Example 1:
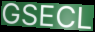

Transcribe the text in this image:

GSECL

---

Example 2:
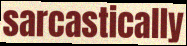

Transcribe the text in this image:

sarcastically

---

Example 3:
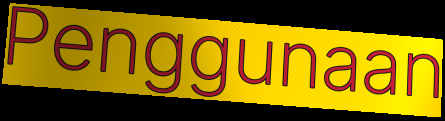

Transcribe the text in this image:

Penggunaan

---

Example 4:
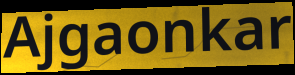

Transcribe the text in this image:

Ajgaonkar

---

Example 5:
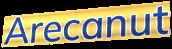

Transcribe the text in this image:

Arecanut